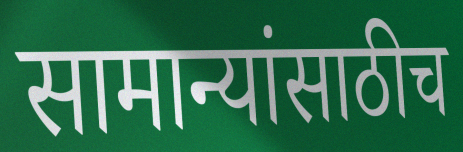
सामान्यांसाठीच